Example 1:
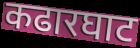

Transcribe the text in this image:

कढारघाट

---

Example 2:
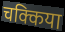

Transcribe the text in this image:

चक्किया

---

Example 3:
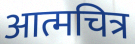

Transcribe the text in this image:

आत्मचित्र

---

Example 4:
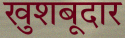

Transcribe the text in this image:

खुशबूदार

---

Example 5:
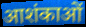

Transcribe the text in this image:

आशंकाओं